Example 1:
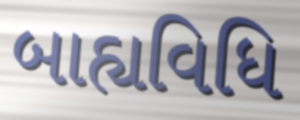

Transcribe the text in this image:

બાહ્યવિધિ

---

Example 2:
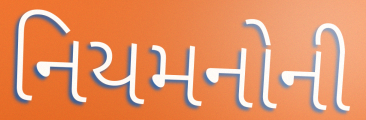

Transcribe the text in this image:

નિયમનોની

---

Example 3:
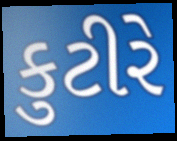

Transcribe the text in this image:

કુટીરે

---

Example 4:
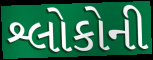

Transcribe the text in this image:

શ્લોકોની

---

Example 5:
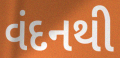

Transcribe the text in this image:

વંદનથી